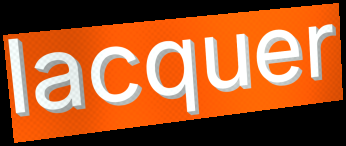
lacquer